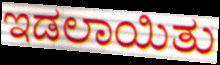
ಇಡಲಾಯಿತು